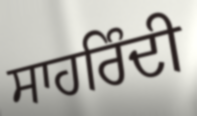
ਸਾਹਰਿੰਦੀ